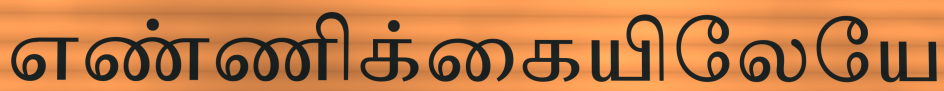
எண்ணிக்கையிலேயே